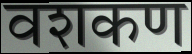
वशकण